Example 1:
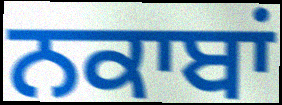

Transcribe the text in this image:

ਨਕਾਬਾਂ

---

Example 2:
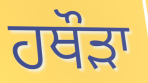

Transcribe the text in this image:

ਹਥੌੜਾ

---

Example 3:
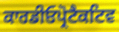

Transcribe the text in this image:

ਕਾਰਡੀਓਪ੍ਰੋਟੈਕਟਿਵ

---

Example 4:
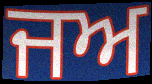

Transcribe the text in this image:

ਜਅ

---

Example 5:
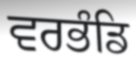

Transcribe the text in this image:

ਵਰਭੰਡਿ